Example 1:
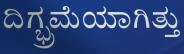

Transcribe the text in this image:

ದಿಗ್ಭ್ರಮೆಯಾಗಿತ್ತು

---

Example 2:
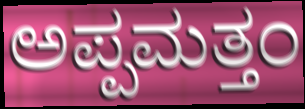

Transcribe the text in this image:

ಅಪ್ಪಮತ್ತಂ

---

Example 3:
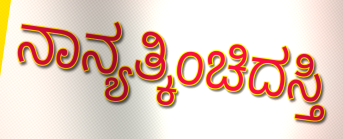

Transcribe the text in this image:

ನಾನ್ಯತ್ಕಿಂಚಿದಸ್ತಿ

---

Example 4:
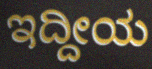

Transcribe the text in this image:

ಇದ್ದೀಯ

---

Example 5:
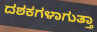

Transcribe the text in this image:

ದಶಕಗಳಾಗುತ್ತಾ